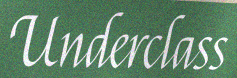
Underclass